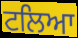
ਟਲਿਆ